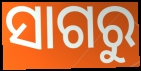
ସାଗରୁ